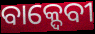
ବାକ୍ଦେବୀ